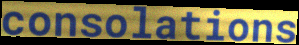
consolations